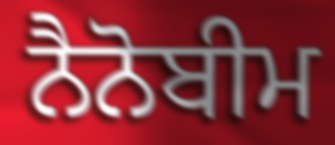
ਨੈਨੋਬੀਮ